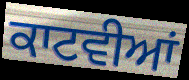
ਕਾਟਵੀਆਂ